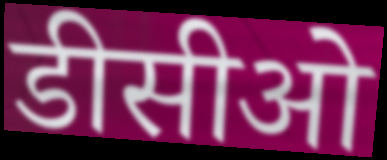
डीसीओ